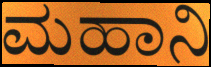
ಮಹಾನಿ